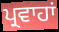
ਪ੍ਰਵਾਹਾਂ